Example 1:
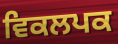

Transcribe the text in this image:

ਵਿਕਲਪਕ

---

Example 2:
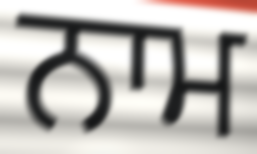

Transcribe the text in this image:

ਨਾਮ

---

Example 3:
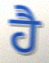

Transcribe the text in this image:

ਹੈ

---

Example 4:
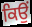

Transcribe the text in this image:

ਕਿਉਂ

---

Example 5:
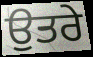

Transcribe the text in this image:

ਉਤਰੇ